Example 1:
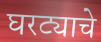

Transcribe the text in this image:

घरट्याचे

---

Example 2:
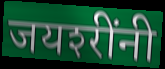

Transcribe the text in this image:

जयश्रींनी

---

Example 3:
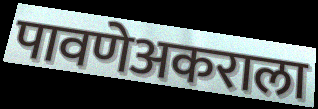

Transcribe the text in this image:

पावणेअकराला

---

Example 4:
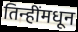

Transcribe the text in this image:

तिन्हींमधून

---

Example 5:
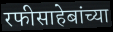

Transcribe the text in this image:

रफीसाहेबांच्या